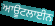
ਆਊਟਲਾਈਨ